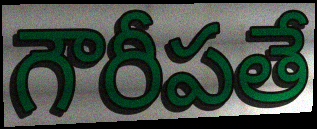
గౌరీపతే